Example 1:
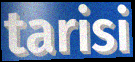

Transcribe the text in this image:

tarisi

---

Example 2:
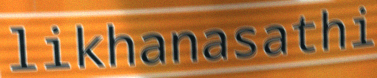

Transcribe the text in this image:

likhanasathi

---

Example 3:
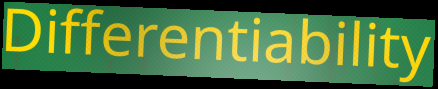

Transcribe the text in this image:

Differentiability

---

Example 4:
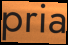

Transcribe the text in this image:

pria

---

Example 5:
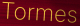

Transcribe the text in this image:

Tormes